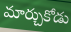
మార్చుకోడు